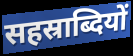
सहस्राब्दियों